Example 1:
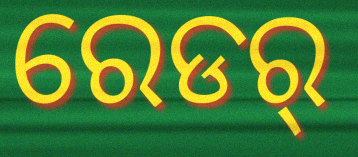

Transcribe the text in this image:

ରେଡର୍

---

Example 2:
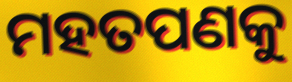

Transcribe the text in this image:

ମହତପଣକୁ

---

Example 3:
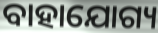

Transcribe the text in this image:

ବାହାଯୋଗ୍ୟ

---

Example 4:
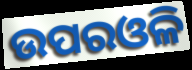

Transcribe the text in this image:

ଉପରଓଳି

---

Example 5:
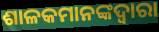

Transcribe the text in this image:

ଶାଳକମାନଙ୍କଦ୍ୱାରା